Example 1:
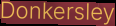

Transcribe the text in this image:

Donkersley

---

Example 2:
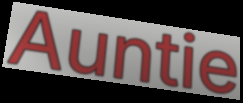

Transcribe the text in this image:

Auntie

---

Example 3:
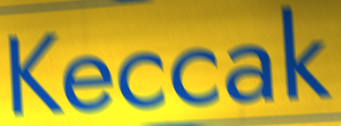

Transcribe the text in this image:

Keccak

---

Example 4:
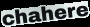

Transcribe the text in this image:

chahere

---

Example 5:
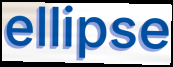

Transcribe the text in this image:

ellipse